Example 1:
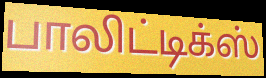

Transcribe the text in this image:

பாலிட்டிக்ஸ்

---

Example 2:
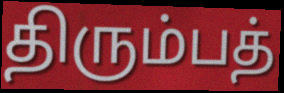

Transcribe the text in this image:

திரும்பத்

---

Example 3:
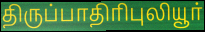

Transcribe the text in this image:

திருப்பாதிரிபுலியூர்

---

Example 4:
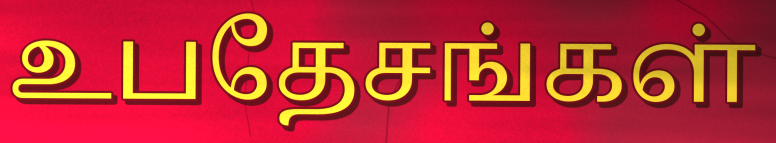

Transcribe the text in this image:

உபதேசங்கள்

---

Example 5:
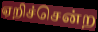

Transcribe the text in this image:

ஏறிச்சென்ற